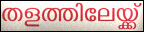
തളത്തിലേയ്ക്ക്